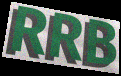
RRB